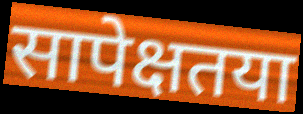
सापेक्षतया